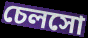
চেলসো